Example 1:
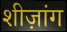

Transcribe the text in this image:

शीज़ांग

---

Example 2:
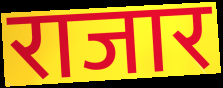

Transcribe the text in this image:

राजार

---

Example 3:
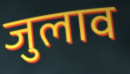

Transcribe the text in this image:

जुलाव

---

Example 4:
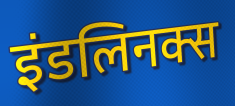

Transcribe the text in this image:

इंडलिनक्स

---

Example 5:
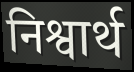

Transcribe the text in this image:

निश्वार्थ